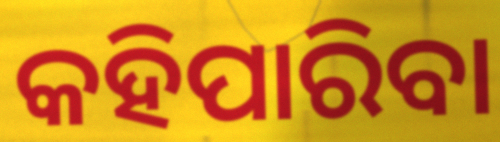
କହିପାରିବା